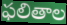
ఫలితాల